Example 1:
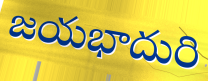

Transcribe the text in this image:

జయభాదురి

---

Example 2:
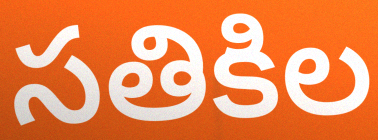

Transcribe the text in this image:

సతికిల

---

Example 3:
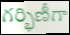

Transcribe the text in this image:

గర్భిణీగా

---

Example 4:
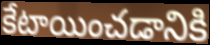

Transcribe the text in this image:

కేటాయించడానికి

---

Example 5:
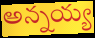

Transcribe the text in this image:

అన్నయ్య